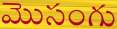
మొసంగు